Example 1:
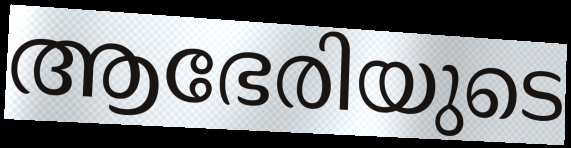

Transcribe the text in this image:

ആഭേരിയുടെ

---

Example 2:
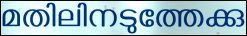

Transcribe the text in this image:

മതിലിനടുത്തേക്കു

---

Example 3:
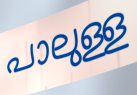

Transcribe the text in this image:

പാലുള്ള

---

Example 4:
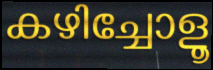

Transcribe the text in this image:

കഴിച്ചോളൂ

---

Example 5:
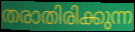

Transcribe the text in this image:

തരാതിരിക്കുന്ന